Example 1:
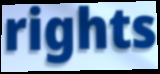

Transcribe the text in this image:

rights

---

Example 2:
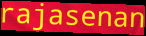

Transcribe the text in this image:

rajasenan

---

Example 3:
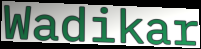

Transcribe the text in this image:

Wadikar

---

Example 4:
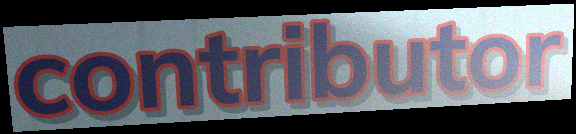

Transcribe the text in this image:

contributor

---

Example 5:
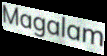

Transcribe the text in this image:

Magalam